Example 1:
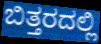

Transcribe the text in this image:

ಬಿತ್ತರದಲ್ಲಿ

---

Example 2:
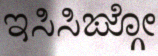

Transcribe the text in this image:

ಇಸಿಸಿಙ್ಗೋ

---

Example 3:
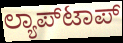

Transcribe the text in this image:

ಲ್ಯಾಪ್‌ಟಾಪ್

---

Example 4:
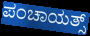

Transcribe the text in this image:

ಪಂಚಾಯತ್ಸ್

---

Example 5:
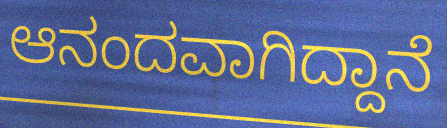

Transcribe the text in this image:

ಆನಂದವಾಗಿದ್ದಾನೆ